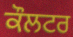
ਕੌਲਟਰ